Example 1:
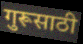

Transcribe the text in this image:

गुरूसाठी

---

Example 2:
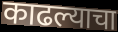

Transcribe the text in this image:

काढल्याचा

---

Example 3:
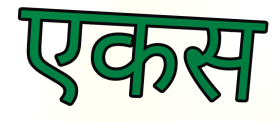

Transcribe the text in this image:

एकस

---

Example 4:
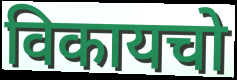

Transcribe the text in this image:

विकायचो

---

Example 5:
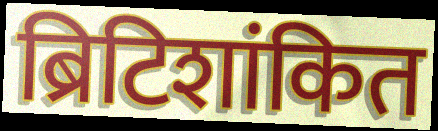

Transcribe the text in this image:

ब्रिटिशांकित